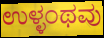
ಉಳ್ಳಂಥವು